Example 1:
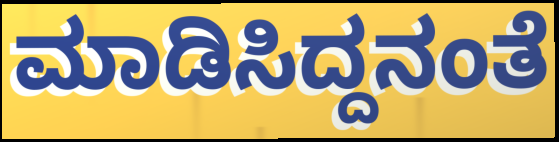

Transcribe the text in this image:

ಮಾಡಿಸಿದ್ದನಂತೆ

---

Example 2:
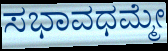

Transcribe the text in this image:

ಸಭಾವಧಮ್ಮೇ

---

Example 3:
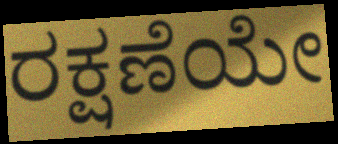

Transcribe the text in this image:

ರಕ್ಷಣೆಯೇ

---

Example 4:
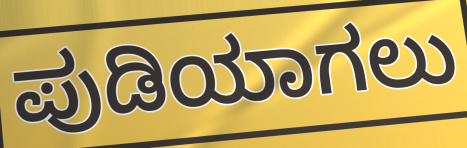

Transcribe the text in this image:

ಪುಡಿಯಾಗಲು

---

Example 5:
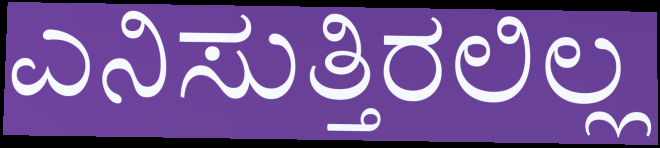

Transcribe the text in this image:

ಎನಿಸುತ್ತಿರಲಿಲ್ಲ